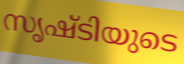
സൃഷ്ടിയുടെ